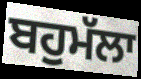
ਬਹੁਮੱਲਾ